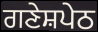
ਗਣੇਸ਼ਪੇਠ